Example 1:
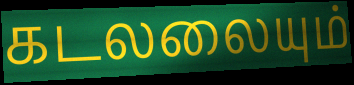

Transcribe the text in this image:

கடலலையும்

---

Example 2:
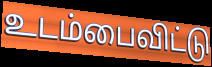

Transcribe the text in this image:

உடம்பைவிட்டு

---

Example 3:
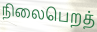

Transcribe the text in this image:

நிலைபெறத்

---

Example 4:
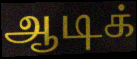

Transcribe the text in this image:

ஆடிக்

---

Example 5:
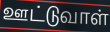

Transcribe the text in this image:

ஊட்டுவாள்